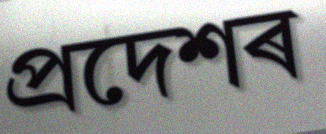
প্ৰদেশৰ